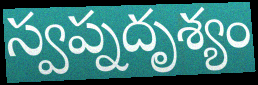
స్వప్నదృశ్యం